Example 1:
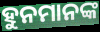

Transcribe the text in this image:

ହୁନମାନଙ୍କ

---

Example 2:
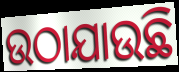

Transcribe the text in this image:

ଉଠାଯାଉଛି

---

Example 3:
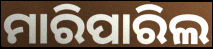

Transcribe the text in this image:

ମାରିପାରିଲ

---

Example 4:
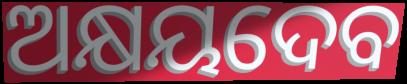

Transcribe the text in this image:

ଅକ୍ଷୟଦେବ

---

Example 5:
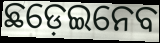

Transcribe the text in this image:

ଛଡ଼େଇନେବ